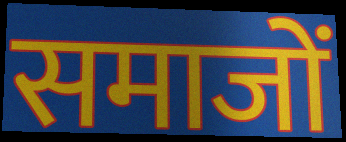
समाजों